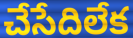
చేసేదిలేక